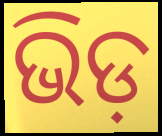
ଭିଡ଼